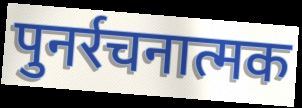
पुनर्रचनात्मक